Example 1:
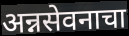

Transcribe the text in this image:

अन्नसेवनाचा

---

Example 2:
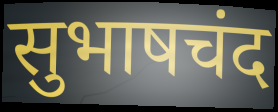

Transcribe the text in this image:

सुभाषचंद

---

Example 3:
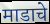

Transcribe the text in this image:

माडाचे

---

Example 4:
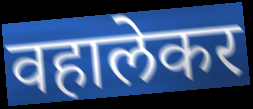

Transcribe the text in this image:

वहालेकर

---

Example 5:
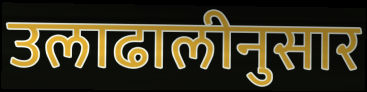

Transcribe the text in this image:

उलाढालीनुसार